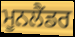
ਮੂਨਲੈਂਡਰ